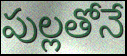
పుల్లతోనే